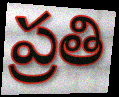
ప్రతి